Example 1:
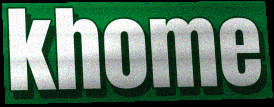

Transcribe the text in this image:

khome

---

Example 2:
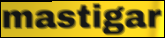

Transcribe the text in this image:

mastigar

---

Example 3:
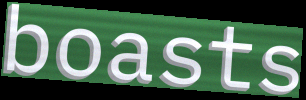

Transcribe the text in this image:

boasts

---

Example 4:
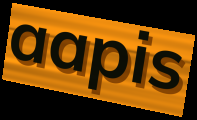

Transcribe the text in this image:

aapis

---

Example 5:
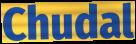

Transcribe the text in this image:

Chudal